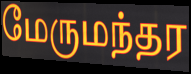
மேருமந்தர